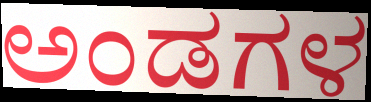
ಅಂಡಗಳ